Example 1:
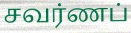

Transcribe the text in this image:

சவர்ணப்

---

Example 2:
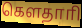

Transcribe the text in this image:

கௌதாரி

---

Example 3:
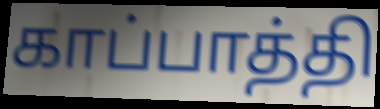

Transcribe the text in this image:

காப்பாத்தி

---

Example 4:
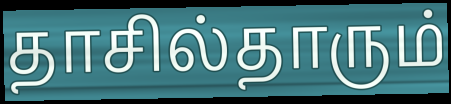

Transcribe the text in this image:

தாசில்தாரும்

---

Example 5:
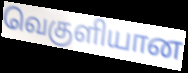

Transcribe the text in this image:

வெகுளியான